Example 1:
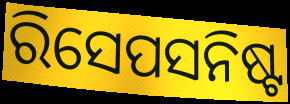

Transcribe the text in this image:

ରିସେପସନିଷ୍ଟ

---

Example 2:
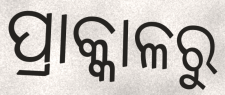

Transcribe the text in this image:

ପ୍ରାକ୍କାଳରୁ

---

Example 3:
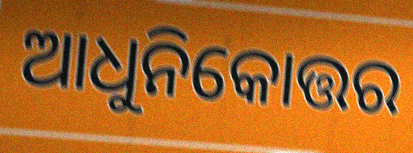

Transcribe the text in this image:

ଆଧୁନିକୋତ୍ତର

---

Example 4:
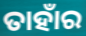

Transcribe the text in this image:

ତାହାଁର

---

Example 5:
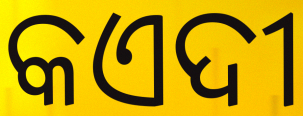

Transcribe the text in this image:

କଏଦୀ